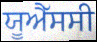
ਯੂਐੱਸਸੀ